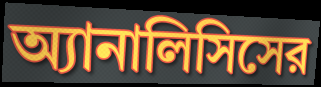
অ্যানালিসিসের